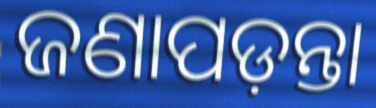
ଜଣାପଡ଼ନ୍ତା